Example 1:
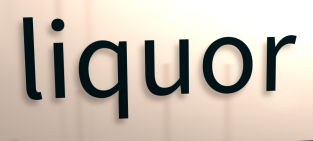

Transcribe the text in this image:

liquor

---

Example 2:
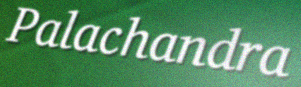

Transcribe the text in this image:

Palachandra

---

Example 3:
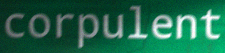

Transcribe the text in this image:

corpulent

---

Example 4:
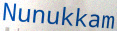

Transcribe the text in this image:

Nunukkam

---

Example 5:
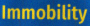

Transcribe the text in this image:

Immobility